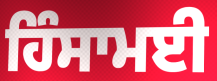
ਹਿੰਸਾਮਈ